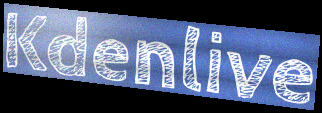
Kdenlive